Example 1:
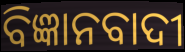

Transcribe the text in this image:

ବିଜ୍ଞାନବାଦୀ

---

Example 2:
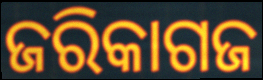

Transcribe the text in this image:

ଜରିକାଗଜ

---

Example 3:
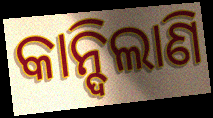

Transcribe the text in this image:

କାନ୍ଦିଲାଣି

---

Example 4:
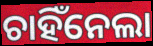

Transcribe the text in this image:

ଚାହିଁନେଲା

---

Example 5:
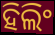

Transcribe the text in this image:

ହିଲିଂ